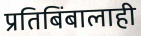
प्रतिबिंबालाही